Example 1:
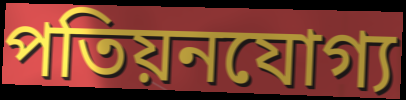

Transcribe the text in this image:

পতিয়নযোগ্য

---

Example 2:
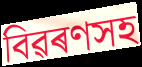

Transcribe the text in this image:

বিৱৰণসহ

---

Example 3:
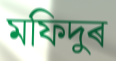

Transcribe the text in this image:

মফিদুৰ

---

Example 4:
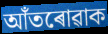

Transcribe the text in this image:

আঁতৰোৱাক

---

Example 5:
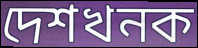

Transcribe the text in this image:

দেশখনক